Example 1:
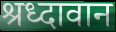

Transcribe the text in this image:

श्रध्दावान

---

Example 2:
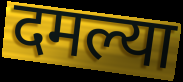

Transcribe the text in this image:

दमल्या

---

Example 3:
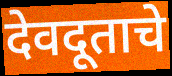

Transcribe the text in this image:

देवदूताचे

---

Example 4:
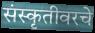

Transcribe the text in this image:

संस्कृतीवरचे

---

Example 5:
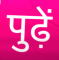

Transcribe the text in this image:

पुढ़ें